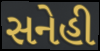
સનેહી